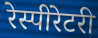
रेस्पीरेटरी